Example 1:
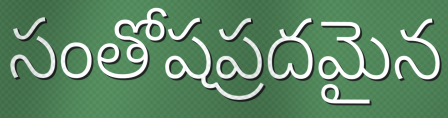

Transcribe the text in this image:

సంతోషప్రదమైన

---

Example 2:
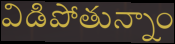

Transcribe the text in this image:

విడిపోతున్నాం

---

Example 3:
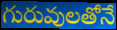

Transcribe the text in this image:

గురువులతోనే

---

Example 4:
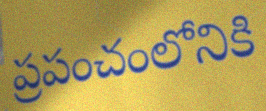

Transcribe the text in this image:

ప్రపంచంలోనికి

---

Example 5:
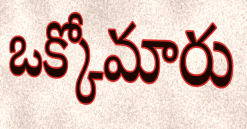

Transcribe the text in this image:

ఒక్కోమారు